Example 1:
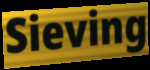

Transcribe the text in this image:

Sieving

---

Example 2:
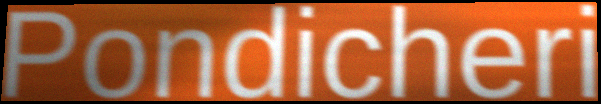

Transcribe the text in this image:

Pondicheri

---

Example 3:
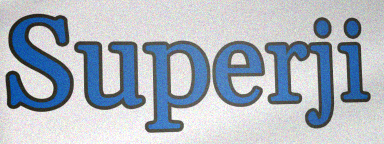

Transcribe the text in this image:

Superji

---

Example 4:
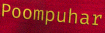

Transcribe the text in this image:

Poompuhar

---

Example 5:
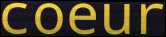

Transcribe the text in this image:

coeur